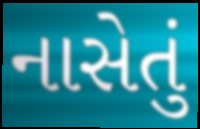
નાસેતું